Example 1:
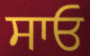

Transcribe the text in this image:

ਸਾਓ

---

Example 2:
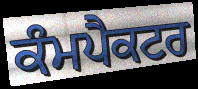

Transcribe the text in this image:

ਕੰਮਪੈਕਟਰ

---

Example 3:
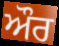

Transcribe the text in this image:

ਔਰ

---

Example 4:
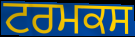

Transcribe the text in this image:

ਟਰਮਕਸ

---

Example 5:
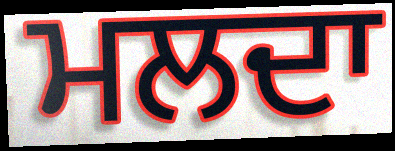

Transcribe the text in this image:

ਮਲਦਾ